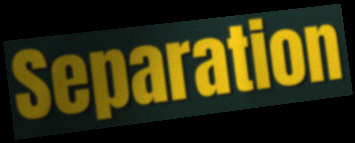
Separation